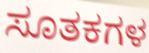
ಸೂತಕಗಳ